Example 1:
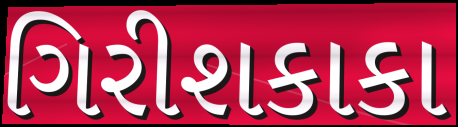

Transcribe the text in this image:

ગિરીશકાકા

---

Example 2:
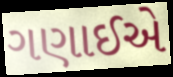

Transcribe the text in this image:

ગણાઈએ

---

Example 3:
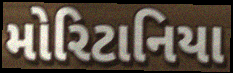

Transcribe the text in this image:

મોરિટાનિયા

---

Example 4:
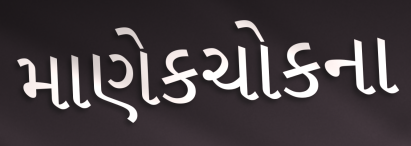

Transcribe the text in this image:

માણેકચોકના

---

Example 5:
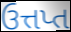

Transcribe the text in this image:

ઉત્તપ્ત